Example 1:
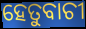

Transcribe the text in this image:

ହେତୁବାଚୀ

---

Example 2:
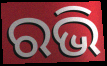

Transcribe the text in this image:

ରଭି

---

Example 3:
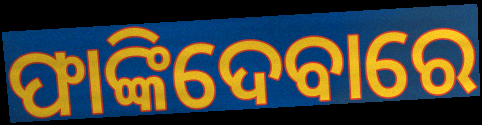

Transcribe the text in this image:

ଫାଙ୍କିଦେବାରେ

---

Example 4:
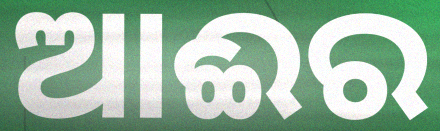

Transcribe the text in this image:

ଆଈର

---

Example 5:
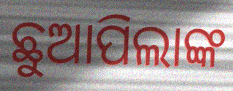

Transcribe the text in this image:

ଛୁଆପିଲାଙ୍କ